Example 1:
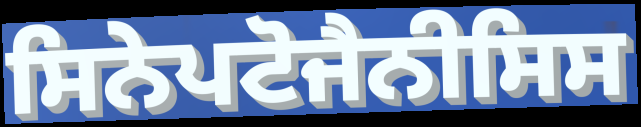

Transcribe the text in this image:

ਸਿਨੇਪਟੋਜੈਨੀਸਿਸ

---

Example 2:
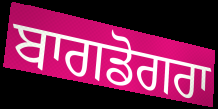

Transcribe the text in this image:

ਬਾਗਡੋਗਰਾ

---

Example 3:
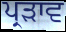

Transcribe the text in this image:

ਪ੍ਰੜਾਵ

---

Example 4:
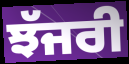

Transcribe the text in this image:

ਝੱਜਰੀ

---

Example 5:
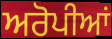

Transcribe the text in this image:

ਅਰੋਪੀਆਂ